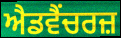
ਐਡਵੈਂਚਰਜ਼